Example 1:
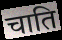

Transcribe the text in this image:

चाति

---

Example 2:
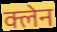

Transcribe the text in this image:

क्लेन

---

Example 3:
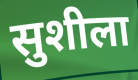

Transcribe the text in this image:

सुशीला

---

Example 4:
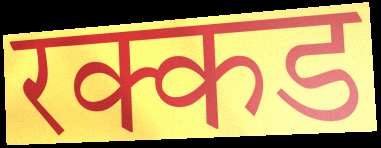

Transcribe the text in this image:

रक्कड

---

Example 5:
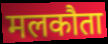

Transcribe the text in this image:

मलकौता